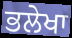
ਭਲੇਖਾ